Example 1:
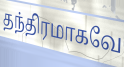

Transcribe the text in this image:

தந்திரமாகவே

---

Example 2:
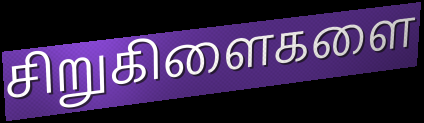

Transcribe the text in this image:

சிறுகிளைகளை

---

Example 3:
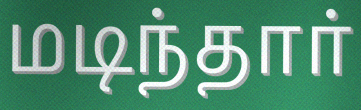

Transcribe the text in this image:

மடிந்தார்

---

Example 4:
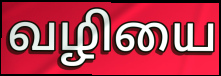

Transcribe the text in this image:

வழியை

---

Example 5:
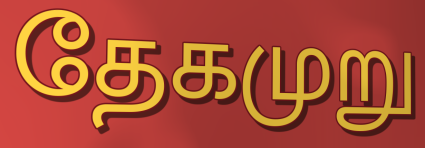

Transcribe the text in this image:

தேகமுறு